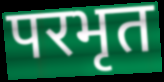
परभृत